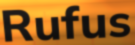
Rufus